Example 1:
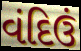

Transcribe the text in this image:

વંદિઉં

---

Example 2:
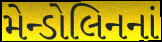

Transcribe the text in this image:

મેન્ડોલિનનાં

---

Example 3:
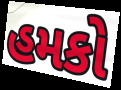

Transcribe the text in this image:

હમકો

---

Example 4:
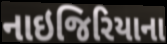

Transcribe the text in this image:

નાઇજિરિયાના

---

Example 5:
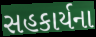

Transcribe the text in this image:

સહકાર્યના